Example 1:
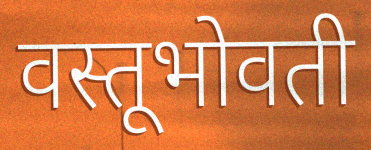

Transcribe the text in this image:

वस्तूभोवती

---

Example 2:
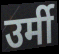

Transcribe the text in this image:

उर्मी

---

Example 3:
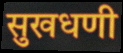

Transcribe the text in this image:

सुखधणी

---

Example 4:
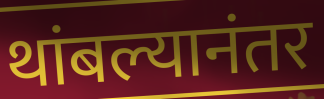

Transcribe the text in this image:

थांबल्यानंतर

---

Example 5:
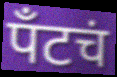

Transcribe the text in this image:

पँटचं